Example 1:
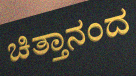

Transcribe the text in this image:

ಚಿತ್ತಾನಂದ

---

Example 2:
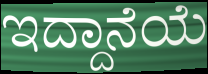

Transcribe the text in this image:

ಇದ್ದಾನೆಯೆ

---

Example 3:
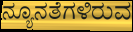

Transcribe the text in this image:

ನ್ಯೂನತೆಗಳಿರುವ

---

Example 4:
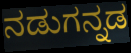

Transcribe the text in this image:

ನಡುಗನ್ನಡ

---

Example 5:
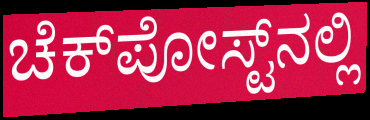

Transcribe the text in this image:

ಚೆಕ್‌ಪೋಸ್ಟ್‌ನಲ್ಲಿ